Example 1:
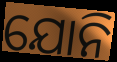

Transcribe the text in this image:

ଯୋନି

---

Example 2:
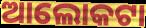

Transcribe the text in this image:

ଆଲୋକଟା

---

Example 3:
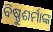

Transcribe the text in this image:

ବିଷ୍ଣୁଶର୍ମାଙ୍କ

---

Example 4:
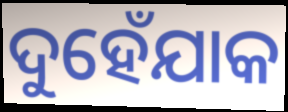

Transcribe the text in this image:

ଦୁହେଁଯାକ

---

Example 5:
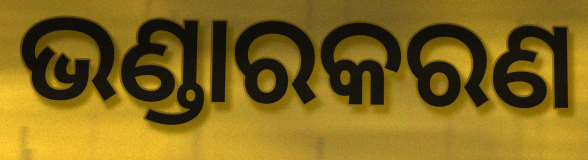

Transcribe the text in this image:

ଭଣ୍ଡାରକରଣ